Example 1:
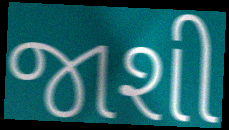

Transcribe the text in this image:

જાશી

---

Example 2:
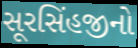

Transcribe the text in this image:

સૂરસિંહજીનો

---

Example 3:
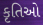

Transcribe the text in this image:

કૃતિઓ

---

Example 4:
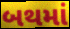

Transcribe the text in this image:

બથમાં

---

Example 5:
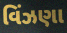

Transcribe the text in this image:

વિંઝણા